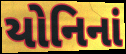
યોનિનાં